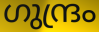
ഗുന്ദ്രം